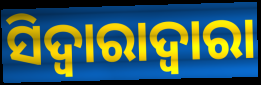
ସିଦ୍ୱାରାଦ୍ୱାରା